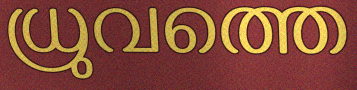
ധ്രുവത്തെ